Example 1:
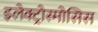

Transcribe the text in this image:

इलेक्ट्रोस्मोसिस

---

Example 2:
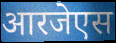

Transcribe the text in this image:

आरजेएस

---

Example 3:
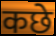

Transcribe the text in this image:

कछे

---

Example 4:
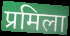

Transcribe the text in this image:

प्रमिला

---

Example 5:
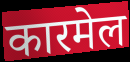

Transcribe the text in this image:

कारमेल